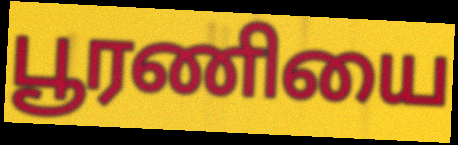
பூரணியை